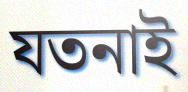
যতনাই